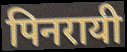
पिनरायी